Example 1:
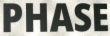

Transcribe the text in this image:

PHASE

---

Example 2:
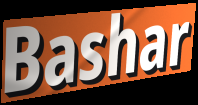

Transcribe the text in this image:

Bashar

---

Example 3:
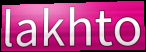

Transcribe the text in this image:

lakhto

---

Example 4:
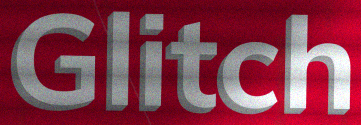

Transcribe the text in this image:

Glitch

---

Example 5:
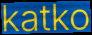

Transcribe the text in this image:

katko